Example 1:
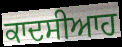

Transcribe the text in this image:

ਕਾਦਸੀਆਹ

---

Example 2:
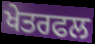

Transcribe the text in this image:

ਖੇਤਰਫਲ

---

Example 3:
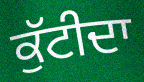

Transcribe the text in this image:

ਕੁੱਟੀਦਾ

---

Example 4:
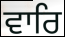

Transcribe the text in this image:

ਵਾਰਿ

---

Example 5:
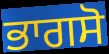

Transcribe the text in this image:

ਭਾਗਸੋ